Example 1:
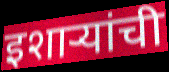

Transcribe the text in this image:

इशाऱ्यांची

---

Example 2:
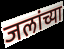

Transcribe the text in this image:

जलांच्या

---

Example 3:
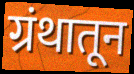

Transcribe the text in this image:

ग्रंथातून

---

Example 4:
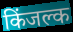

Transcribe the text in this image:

किंजल्क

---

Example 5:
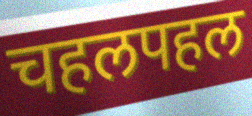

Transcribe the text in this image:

चहलपहल